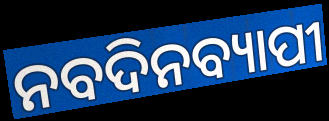
ନବଦିନବ୍ୟାପୀ